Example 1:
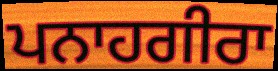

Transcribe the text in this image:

ਪਨਾਹਗੀਰਾ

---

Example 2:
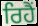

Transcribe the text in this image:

ਰਿਹੈੰ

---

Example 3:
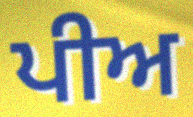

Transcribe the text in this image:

ਪੀਅ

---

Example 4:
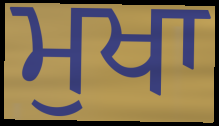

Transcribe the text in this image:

ਮੁਖਾ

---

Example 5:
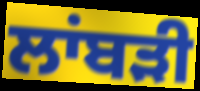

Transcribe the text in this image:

ਲਾਂਬੜੀ